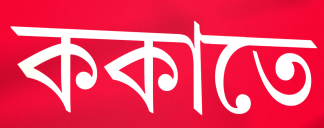
ককাতে